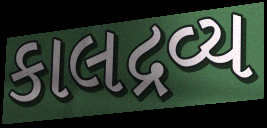
કાલદ્રવ્ય